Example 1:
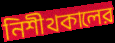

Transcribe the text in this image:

নিশীথকালের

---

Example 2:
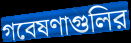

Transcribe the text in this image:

গবেষণাগুলির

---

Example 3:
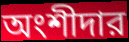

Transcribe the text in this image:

অংশীদার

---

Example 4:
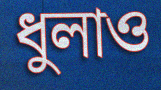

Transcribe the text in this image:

ধুলাও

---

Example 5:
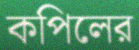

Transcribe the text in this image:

কপিলের